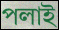
পলাই